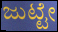
ಜುಟ್ಟೇ